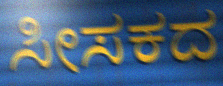
ಸೀಸಕದ